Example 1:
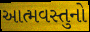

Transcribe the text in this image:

આત્મવસ્તુનો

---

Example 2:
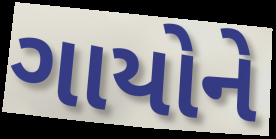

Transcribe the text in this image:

ગાયોને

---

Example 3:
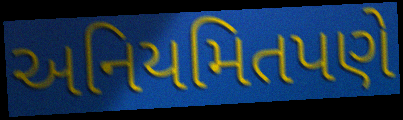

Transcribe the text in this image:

અનિયમિતપણે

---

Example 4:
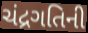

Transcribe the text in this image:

ચંદ્રગતિની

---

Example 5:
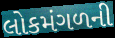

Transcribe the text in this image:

લોકમંગળની